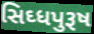
સિઘ્ધપુરૂષ